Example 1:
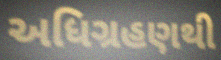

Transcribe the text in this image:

અધિગ્રહણથી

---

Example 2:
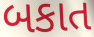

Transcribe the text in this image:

બકાત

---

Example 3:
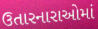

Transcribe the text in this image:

ઉતારનારાઓમાં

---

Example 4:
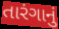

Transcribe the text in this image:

તારંગાનું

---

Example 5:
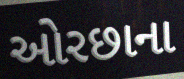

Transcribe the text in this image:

ઓરછાના